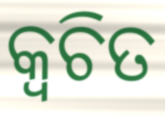
କ୍ୱଚିତ